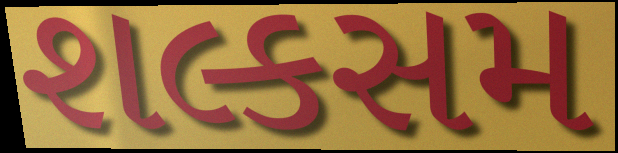
શલ્કસમ